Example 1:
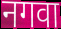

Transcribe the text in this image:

नगवा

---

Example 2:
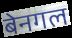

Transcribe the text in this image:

बेनगल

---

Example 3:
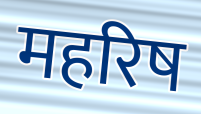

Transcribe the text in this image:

महरिष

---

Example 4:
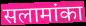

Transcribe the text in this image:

सलामांका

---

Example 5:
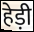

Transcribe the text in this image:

हेड़ी